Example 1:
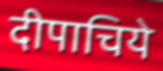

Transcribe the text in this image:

दीपाचिये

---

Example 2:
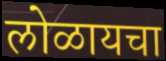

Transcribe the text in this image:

लोळायचा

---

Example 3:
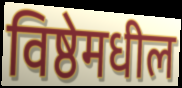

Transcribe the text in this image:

विष्ठेमधील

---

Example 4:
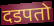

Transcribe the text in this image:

दडपतो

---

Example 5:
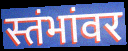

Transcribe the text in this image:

स्तंभांवर